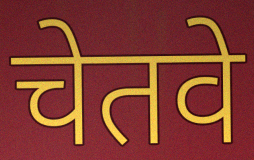
चेतवे